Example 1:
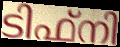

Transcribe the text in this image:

ടിഫ്നി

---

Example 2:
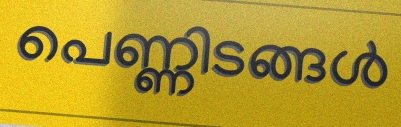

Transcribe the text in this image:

പെണ്ണിടങ്ങൾ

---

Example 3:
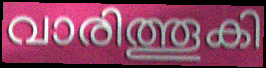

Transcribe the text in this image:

വാരിത്തൂകി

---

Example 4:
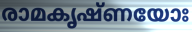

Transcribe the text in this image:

രാമകൃഷ്ണയോഃ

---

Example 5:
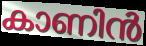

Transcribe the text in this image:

കാണിൻ